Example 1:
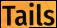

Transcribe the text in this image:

Tails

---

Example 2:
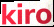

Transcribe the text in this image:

kiro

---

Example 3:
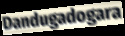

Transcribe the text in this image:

Dandugadogara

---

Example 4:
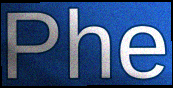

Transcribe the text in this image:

Phe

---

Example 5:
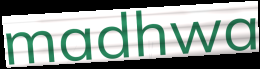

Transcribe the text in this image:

madhwa